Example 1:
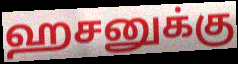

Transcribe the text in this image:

ஹசனுக்கு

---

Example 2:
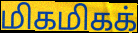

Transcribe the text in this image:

மிகமிகக்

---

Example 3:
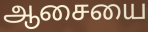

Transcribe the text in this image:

ஆசையை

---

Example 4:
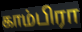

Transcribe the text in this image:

காம்பிரா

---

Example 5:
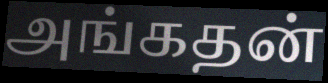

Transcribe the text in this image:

அங்கதன்